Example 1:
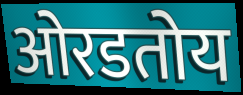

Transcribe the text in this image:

ओरडतोय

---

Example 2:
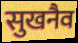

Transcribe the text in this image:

सुखनैव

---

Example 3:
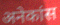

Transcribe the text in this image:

अनेकांस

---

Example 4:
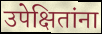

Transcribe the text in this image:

उपेक्षितांना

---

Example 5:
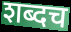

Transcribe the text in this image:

शब्दच